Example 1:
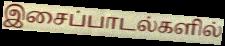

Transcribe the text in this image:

இசைப்பாடல்களில்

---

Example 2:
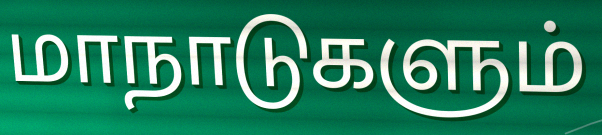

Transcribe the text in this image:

மாநாடுகளும்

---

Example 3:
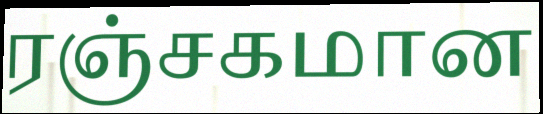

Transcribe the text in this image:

ரஞ்சகமான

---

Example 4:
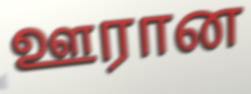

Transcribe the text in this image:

ஊரான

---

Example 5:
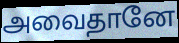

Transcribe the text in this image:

அவைதானே